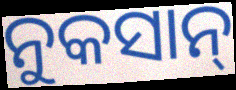
ନୁକସାନ୍